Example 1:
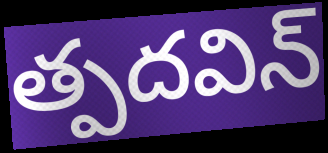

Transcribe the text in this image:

త్పదవిన్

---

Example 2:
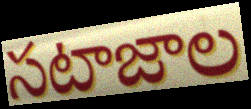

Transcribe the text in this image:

సటాజాల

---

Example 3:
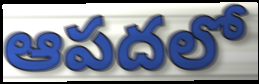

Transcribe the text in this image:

ఆపదలో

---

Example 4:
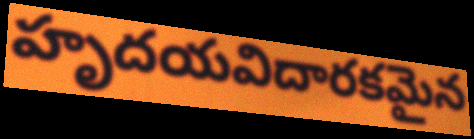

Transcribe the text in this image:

హృదయవిదారకమైన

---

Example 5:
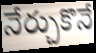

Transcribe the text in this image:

నేర్చుకొనే